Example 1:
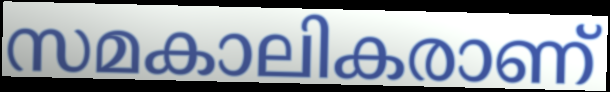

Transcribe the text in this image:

സമകാലികരാണ്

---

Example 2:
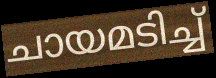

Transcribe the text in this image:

ചായമടിച്ച്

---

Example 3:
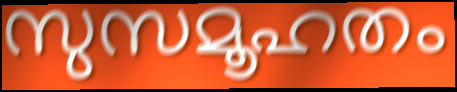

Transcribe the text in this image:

സുസമൂഹതം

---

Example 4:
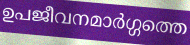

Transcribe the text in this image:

ഉപജീവനമാർഗ്ഗത്തെ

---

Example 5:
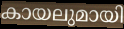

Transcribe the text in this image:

കായലുമായി